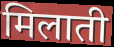
मिलाती